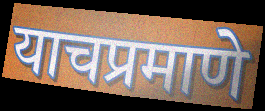
याचप्रमाणे